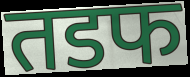
तडफ